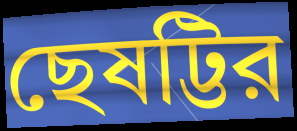
ছেষট্টির